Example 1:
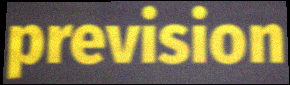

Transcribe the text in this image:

prevision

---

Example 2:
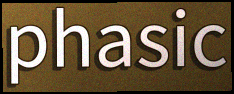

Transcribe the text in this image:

phasic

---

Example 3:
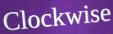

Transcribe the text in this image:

Clockwise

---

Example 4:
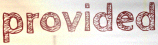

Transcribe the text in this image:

provided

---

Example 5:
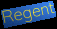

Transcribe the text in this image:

Regent